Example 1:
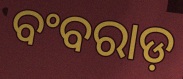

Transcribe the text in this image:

ବଂବରାଡ଼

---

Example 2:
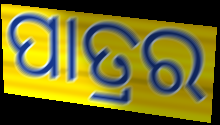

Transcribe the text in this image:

ପାତ୍ରର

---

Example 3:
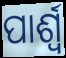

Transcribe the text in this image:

ପାର୍ଶ୍ୱ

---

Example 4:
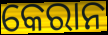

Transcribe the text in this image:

କେରାନ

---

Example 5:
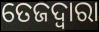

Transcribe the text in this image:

ତେଜଦ୍ୱାରା